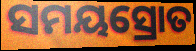
ସମୟସ୍ରୋତ